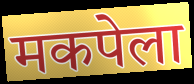
मकपेला